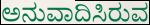
ಅನುವಾದಿಸಿರುವ